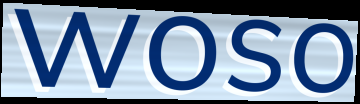
woso